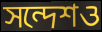
সন্দেশও